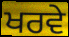
ਖਰਵੇ